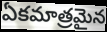
ఏకమాత్రమైన